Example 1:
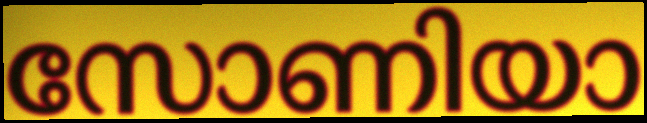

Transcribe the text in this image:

സോണിയാ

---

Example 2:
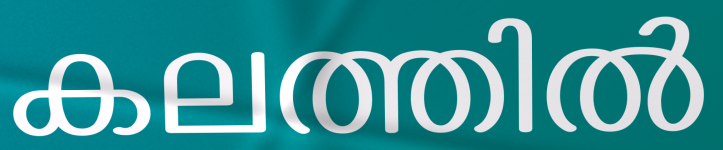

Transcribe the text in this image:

കലത്തിൽ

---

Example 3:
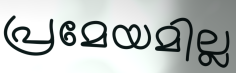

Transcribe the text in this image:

പ്രമേയമില്ല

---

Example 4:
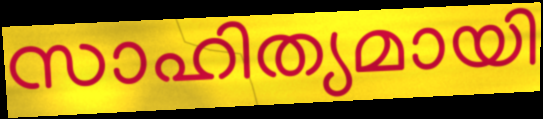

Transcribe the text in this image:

സാഹിത്യമായി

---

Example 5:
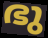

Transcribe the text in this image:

ഭു